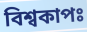
বিশ্বকাপঃ